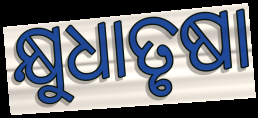
କ୍ଷୁଧାତୃଷା